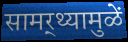
सामर्थ्यामुळें